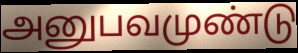
அனுபவமுண்டு